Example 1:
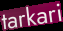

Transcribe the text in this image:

tarkari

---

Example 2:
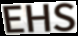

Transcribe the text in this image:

EHS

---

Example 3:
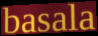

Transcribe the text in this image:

basala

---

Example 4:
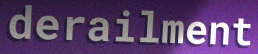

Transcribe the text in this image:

derailment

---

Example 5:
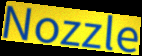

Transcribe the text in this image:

Nozzle